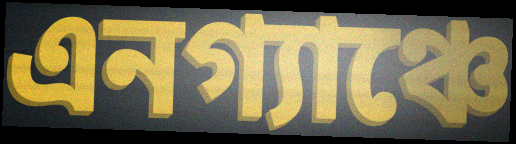
এনগ্যাঞ্চে